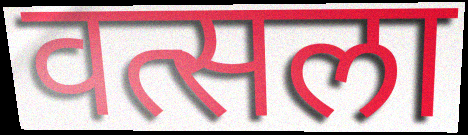
वत्सला